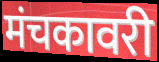
मंचकावरी